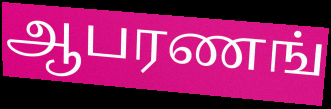
ஆபரணங்